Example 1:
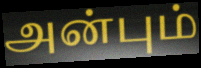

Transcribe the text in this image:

அன்பும்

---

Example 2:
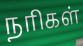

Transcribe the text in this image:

நரிகள்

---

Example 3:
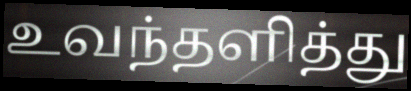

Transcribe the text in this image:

உவந்தளித்து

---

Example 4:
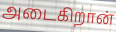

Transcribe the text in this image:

அடைகிறான்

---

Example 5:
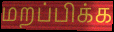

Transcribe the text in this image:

மறப்பிக்க